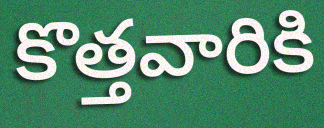
కొత్తవారికి